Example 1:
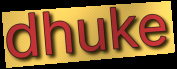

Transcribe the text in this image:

dhuke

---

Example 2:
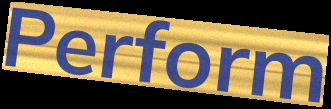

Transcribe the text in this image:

Perform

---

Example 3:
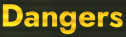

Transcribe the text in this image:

Dangers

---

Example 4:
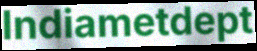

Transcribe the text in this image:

Indiametdept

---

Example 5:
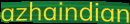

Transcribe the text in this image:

azhaindian